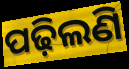
ପଢ଼ିଲଣି